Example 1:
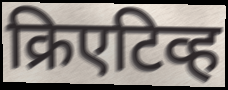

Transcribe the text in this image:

क्रिएटिव्ह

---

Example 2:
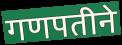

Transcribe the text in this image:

गणपतीने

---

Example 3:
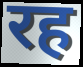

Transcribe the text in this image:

रह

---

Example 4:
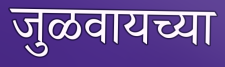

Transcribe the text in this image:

जुळवायच्या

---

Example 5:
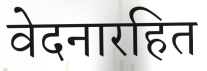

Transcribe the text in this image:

वेदनारहित